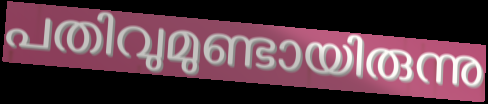
പതിവുമുണ്ടായിരുന്നു